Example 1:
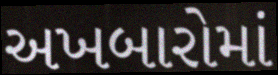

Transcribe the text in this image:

અખબારોમાં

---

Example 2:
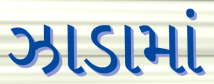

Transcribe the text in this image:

ઝાડામાં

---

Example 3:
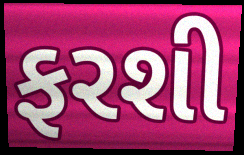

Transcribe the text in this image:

ફરશી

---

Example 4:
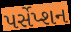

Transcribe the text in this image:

પર્સેપ્શન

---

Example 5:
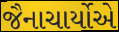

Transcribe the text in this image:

જૈનાચાર્યોએ